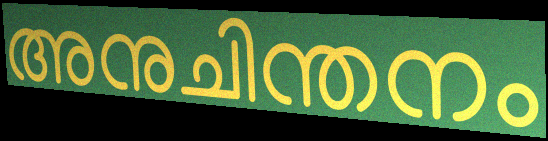
അനുചിന്തനം